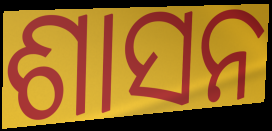
ଶାସନ